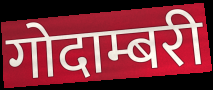
गोदाम्बरी